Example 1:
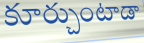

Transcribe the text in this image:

కూర్చుంటాడా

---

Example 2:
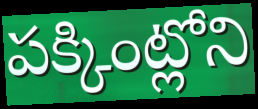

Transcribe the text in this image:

పక్కింట్లోని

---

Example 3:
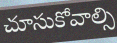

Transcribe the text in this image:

చూసుకోవాల్సి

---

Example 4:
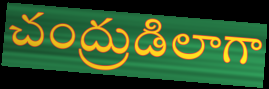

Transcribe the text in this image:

చంద్రుడిలాగా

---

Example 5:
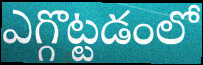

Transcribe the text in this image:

ఎగ్గొట్టడంలో